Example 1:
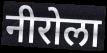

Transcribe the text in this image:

नीरोला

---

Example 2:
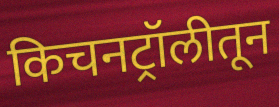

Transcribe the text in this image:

किचनट्रॉलीतून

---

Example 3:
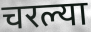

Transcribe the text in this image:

चरल्या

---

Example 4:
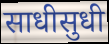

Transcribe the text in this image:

साधीसुधी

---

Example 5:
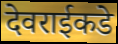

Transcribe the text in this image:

देवराईकडे